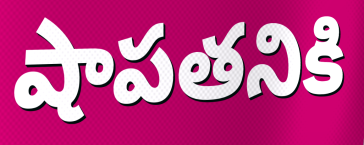
షాపతనికి